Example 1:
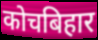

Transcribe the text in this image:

कोचबिहार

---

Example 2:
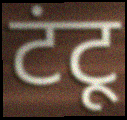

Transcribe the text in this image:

टंटू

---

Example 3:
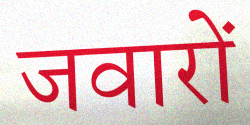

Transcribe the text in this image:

जवारों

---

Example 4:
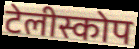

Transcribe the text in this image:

टेलीस्‍कोप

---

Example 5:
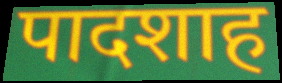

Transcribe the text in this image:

पादशाह